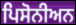
ਪਿਸੋਨੀਅਨ